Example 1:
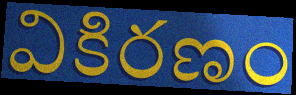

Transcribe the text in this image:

వికిరణం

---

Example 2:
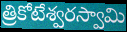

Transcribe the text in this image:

త్రికోటేశ్వరస్వామి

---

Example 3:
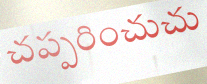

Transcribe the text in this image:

చప్పరించుచు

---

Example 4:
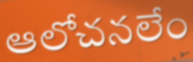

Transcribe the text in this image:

ఆలోచనలేం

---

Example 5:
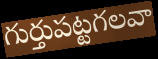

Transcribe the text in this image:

గుర్తుపట్టగలవా